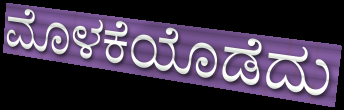
ಮೊಳಕೆಯೊಡೆದು